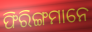
ଫିରିଙ୍ଗମାନେ